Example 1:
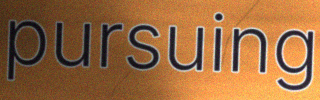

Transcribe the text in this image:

pursuing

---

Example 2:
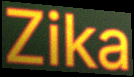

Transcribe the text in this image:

Zika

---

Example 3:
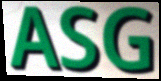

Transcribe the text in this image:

ASG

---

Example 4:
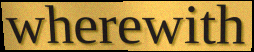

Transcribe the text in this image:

wherewith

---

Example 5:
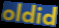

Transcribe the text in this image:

oldid